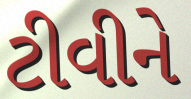
ટીવીને